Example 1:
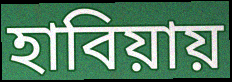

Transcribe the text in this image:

হাবিয়ায়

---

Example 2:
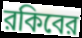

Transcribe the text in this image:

রকিবের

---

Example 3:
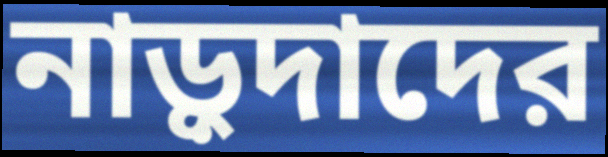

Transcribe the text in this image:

নাড়ুদাদের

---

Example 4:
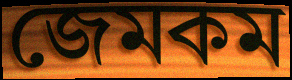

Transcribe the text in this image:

জেমকম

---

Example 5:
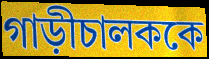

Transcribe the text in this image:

গাড়ীচালককে